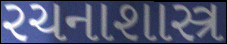
રચનાશાસ્ત્ર